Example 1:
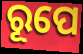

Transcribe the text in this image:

ରୂପେ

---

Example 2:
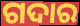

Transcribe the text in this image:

ଗଦାର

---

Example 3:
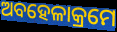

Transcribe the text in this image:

ଅବହେଳାକ୍ରମେ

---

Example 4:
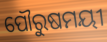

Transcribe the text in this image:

ପୌରୁଷମୟୀ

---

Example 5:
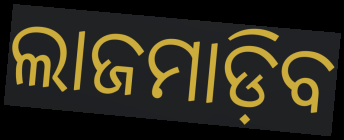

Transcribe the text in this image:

ଲାଜମାଡ଼ିବ